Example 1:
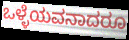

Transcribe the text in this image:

ಒಳ್ಳೆಯವನಾದರೂ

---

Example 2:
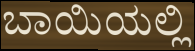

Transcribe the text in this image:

ಬಾಯಿಯಲ್ಲಿ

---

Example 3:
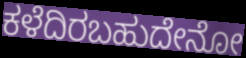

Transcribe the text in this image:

ಕಳೆದಿರಬಹುದೇನೋ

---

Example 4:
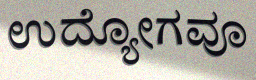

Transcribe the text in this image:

ಉದ್ಯೋಗವೂ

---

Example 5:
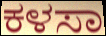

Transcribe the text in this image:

ಕಳಸಾ